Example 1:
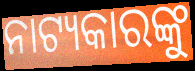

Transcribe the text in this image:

ନାଟ୍ୟକାରଙ୍କୁ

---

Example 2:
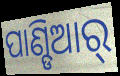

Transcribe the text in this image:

ପାଣ୍ଡିଆର୍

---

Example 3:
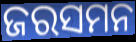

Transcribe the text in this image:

ଜରସମନ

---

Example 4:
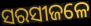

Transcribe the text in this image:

ସରସୀଜଳେ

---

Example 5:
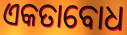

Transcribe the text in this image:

ଏକତାବୋଧ